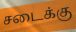
சடைக்கு